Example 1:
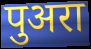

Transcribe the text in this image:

पुअरा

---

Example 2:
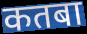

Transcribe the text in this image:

कतबा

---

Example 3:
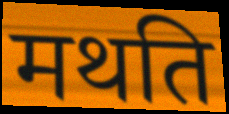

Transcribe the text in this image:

मथति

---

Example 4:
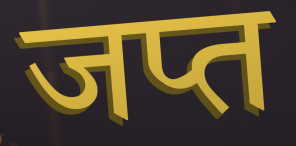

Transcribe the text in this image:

जप्त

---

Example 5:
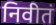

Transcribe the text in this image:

निवीतं